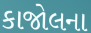
કાજોલના